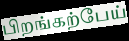
பிறங்கற்பேய்